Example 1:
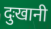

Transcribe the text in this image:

दुःखानी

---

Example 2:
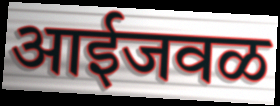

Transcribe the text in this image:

आईजवळ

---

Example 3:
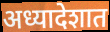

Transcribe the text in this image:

अध्यादेशात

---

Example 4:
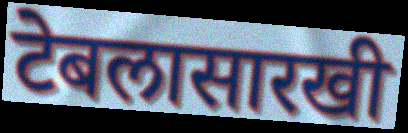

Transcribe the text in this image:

टेबलासारखी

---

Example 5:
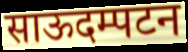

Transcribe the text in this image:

साऊदम्पटन